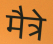
मैत्रे